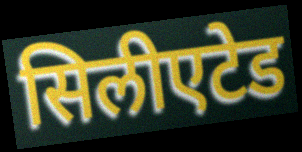
सिलीएटेड